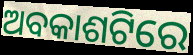
ଅବକାଶଟିରେ